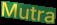
Mutra